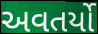
અવતર્યો